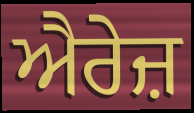
ਐਰੇਜ਼